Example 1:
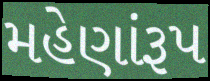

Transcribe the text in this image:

મહેણાંરૂપ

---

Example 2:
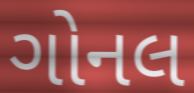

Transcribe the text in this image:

ગોનલ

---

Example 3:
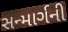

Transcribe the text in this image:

સન્માર્ગની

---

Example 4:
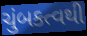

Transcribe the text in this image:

ચુંબકત્વથી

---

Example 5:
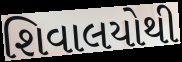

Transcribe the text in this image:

શિવાલયોથી